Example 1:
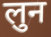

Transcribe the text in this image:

लुन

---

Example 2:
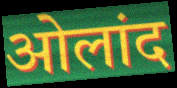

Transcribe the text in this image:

ओलांद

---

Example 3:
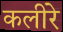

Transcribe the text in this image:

कलीरे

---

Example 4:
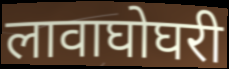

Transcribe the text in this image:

लावाघोघरी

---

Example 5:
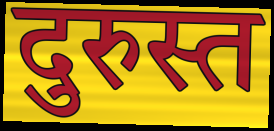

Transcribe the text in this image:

दुरुस्त